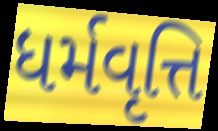
ધર્મવૃત્તિ